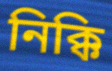
নিক্কি